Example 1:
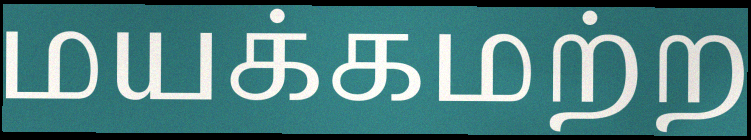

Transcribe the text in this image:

மயக்கமற்ற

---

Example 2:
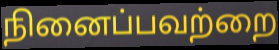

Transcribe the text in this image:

நினைப்பவற்றை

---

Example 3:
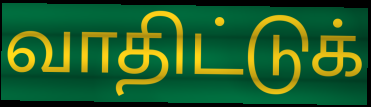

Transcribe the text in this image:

வாதிட்டுக்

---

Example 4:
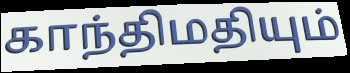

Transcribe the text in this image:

காந்திமதியும்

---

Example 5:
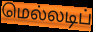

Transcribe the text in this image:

மெல்லடிப்